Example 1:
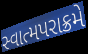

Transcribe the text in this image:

સ્વાત્મપરાક્રમે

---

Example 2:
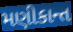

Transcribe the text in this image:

મણીકાન્ત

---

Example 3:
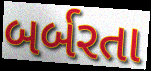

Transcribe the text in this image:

બર્બરતા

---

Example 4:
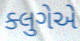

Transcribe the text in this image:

ક્લુગેએ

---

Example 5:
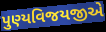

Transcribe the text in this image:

પુણ્યવિજયજીએ